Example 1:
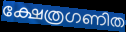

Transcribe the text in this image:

ക്ഷേത്രഗണിത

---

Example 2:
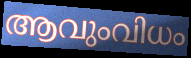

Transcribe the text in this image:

ആവുംവിധം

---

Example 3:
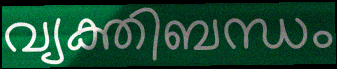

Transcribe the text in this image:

വ്യക്തിബന്ധം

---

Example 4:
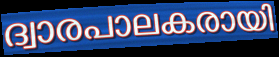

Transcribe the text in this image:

ദ്വാരപാലകരായി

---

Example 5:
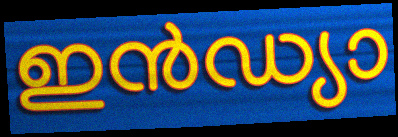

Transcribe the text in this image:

ഇൻഡ്യാ